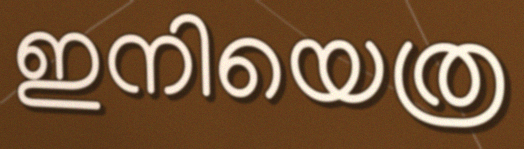
ഇനിയെത്ര